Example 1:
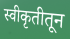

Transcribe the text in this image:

स्वीकृतीतून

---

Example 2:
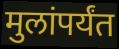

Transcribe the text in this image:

मुलांपर्यंत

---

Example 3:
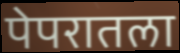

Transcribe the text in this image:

पेपरातला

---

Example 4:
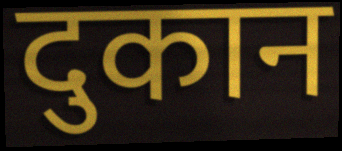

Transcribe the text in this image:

दुकान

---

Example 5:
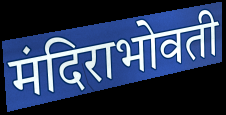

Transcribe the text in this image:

मंदिराभोवती